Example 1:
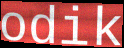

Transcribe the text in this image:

odik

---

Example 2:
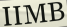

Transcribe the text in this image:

IIMB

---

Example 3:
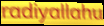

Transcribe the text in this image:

radiyallahu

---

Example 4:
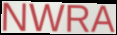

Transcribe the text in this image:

NWRA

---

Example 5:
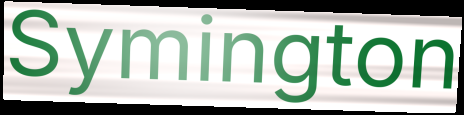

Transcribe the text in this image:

Symington